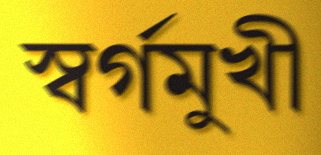
স্বর্গমুখী